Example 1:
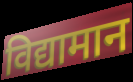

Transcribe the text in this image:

विद्यामान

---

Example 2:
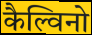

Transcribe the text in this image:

कैल्विनो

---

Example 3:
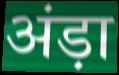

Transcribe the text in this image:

अंड़ा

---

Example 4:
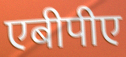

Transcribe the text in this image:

एबीपीए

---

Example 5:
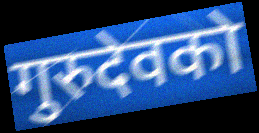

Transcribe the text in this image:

गुरुदेवको